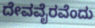
ದೇವವೈರವೆಂದು